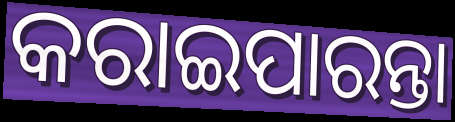
କରାଇପାରନ୍ତା